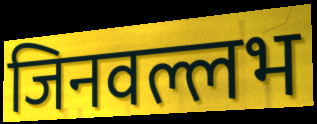
जिनवल्लभ